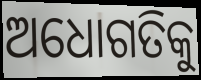
ଅଧୋଗତିକୁ